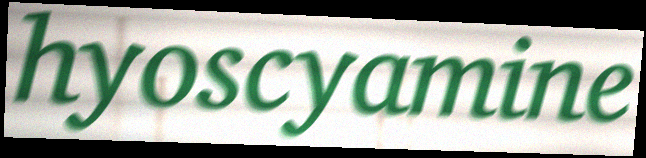
hyoscyamine